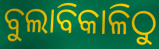
ବୁଲାବିକାଳିଠୁ